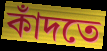
কাঁদতে